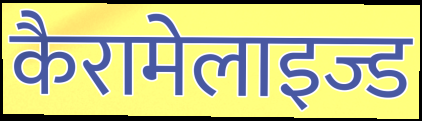
कैरामेलाइज्ड